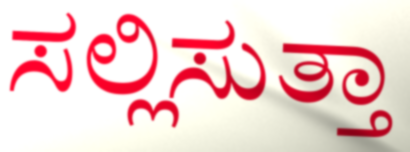
ಸಲ್ಲಿಸುತ್ತಾ